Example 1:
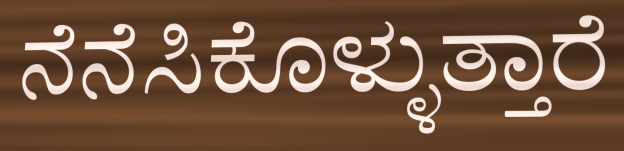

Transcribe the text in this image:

ನೆನೆಸಿಕೊಳ್ಳುತ್ತಾರೆ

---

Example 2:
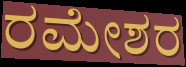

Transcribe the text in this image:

ರಮೇಶರ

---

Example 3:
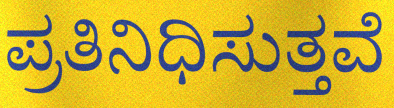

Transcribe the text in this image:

ಪ್ರತಿನಿಧಿಸುತ್ತವೆ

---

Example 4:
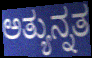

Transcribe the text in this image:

ಅತ್ಯುನ್ನತ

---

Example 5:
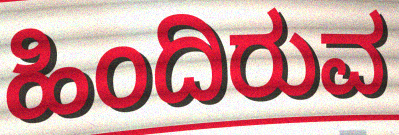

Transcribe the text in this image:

ಹಿಂದಿರುವ